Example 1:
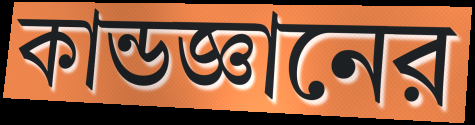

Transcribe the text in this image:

কান্ডজ্ঞানের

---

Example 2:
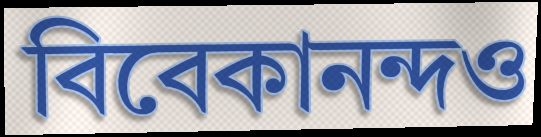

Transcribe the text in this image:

বিবেকানন্দও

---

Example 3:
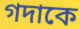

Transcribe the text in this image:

গদাকে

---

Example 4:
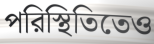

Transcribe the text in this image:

পরিস্থিতিতেও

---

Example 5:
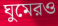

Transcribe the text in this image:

ঘুমেরও